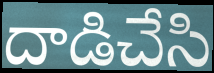
దాడిచేసి